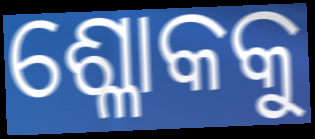
ଶ୍ଳୋକକୁ